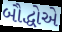
બૌદ્ધોએ